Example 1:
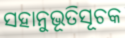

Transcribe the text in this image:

ସହାନୁଭୂତିସୂଚକ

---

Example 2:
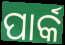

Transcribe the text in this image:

ପାର୍କ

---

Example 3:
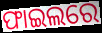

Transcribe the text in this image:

ଫାଇଲରେ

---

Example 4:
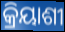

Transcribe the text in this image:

କ୍ରିୟାଶୀ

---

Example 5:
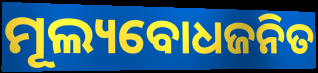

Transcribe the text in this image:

ମୂଲ୍ୟବୋଧଜନିତ